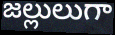
జల్లులుగా